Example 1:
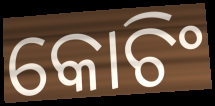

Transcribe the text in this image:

କୋଚିଂ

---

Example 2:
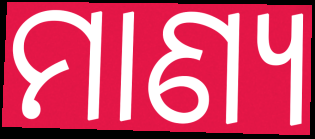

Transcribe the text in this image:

ମାଣ୍ୟ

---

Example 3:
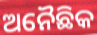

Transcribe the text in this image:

ଅନୈଛିକ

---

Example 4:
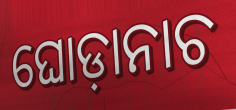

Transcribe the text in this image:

ଘୋଡ଼ାନାଚ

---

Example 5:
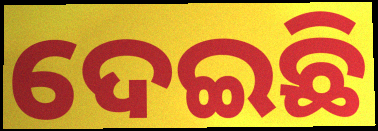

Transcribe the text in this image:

ଦେଇଛି